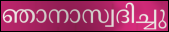
ഞാനാസ്വദിച്ചു